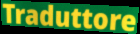
Traduttore